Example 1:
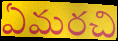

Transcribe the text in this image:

ఏమరచి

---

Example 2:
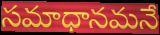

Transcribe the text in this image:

సమాధానమనే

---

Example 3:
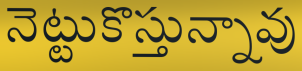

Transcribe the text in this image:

నెట్టుకొస్తున్నావు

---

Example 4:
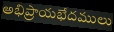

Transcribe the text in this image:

అభిప్రాయభేదములు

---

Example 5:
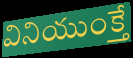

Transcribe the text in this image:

వినియుంక్తే